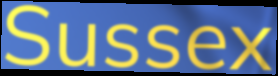
Sussex